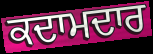
ਕਦਾਮਦਾਰ